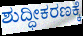
ಶುದ್ಧೀಕರಣಕ್ಕೆ